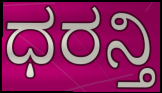
ಧರನ್ತಿ